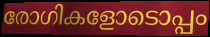
രോഗികളോടൊപ്പം